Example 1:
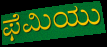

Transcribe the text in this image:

ಫೆಮಿಯು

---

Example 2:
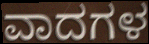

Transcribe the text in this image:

ವಾದಗಳ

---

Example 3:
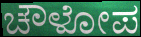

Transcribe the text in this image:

ಚೌಳೋಪ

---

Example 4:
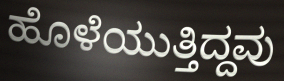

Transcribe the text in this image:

ಹೊಳೆಯುತ್ತಿದ್ದವು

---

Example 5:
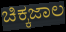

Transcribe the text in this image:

ಚಿಕ್ಕಜಾಲ